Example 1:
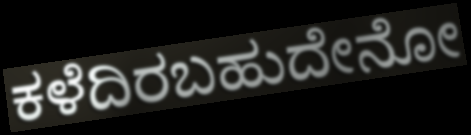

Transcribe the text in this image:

ಕಳೆದಿರಬಹುದೇನೋ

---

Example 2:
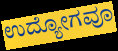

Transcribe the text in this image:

ಉದ್ಯೋಗವೂ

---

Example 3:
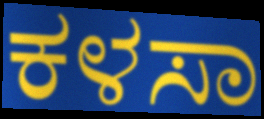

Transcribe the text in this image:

ಕಳಸಾ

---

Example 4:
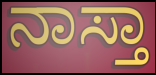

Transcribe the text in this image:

ನಾಸ್ತಾ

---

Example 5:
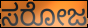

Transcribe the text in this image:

ಸರೋಜ